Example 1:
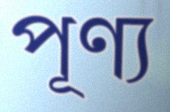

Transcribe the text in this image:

পূণ্য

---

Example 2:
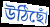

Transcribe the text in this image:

উঠিছোঁ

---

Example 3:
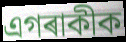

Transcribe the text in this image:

এগৰাকীক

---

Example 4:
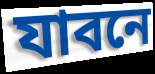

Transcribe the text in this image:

যাবনে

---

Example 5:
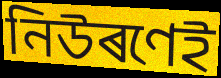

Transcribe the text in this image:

নিউৰণেই